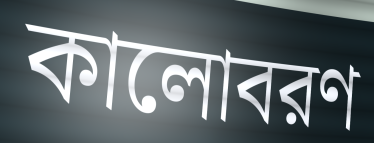
কালোবরণ